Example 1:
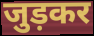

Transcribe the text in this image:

जुड़कर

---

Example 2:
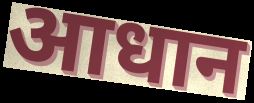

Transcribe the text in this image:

आधान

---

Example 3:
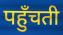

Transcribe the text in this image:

पहुँचती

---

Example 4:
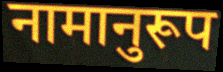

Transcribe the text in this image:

नामानुरूप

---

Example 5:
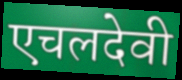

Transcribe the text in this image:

एचलदेवी